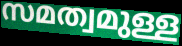
സമത്വമുള്ള